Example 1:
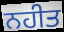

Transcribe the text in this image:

ਨਹੀਤ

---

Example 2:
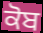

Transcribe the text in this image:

ਕੋਬ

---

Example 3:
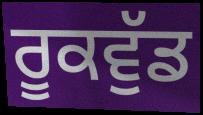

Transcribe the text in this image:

ਰੂਕਵੁੱਡ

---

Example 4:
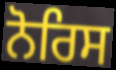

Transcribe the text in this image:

ਨੋਰਿਸ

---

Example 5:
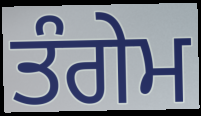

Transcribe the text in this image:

ਤੰਗੇਮ